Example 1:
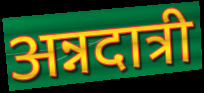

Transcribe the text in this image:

अन्नदात्री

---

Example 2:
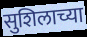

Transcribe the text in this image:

सुशिलाच्या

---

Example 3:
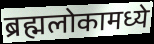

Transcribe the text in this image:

ब्रह्मलोकामध्ये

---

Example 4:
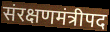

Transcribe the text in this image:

संरक्षणमंत्रीपद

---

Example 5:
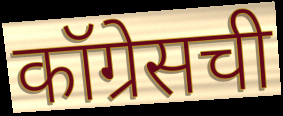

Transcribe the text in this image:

कॉग्रेसची